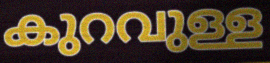
കുറവുള്ള